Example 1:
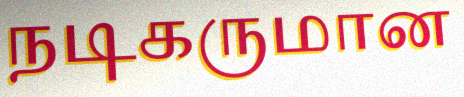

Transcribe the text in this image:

நடிகருமான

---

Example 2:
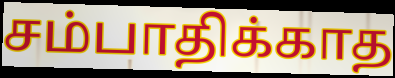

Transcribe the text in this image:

சம்பாதிக்காத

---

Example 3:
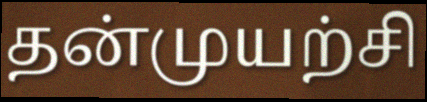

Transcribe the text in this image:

தன்முயற்சி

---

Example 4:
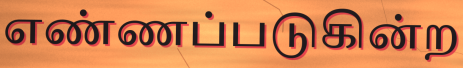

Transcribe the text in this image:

எண்ணப்படுகின்ற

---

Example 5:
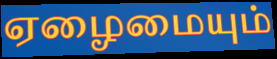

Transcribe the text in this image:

ஏழைமையும்